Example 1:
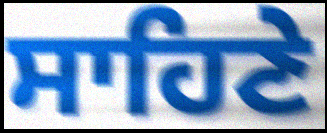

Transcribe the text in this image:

ਸਾਹਿਣੇ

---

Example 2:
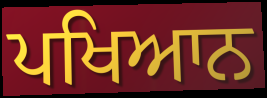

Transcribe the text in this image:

ਪਖਿਆਨ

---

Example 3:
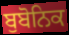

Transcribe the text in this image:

ਬੁਬੋਨਿਕ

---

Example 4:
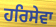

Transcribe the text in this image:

ਹਰਿਸੇਵਾ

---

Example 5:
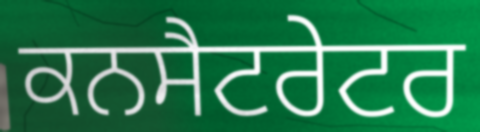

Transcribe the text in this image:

ਕਨਸੈਟਰੇਟਰ